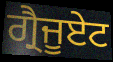
ਗ੍ਰੈਜੂਏਟ